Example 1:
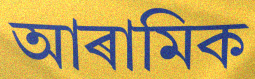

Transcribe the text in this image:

আৰামিক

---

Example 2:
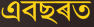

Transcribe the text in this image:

এবছৰত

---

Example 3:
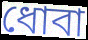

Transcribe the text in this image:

ধোবা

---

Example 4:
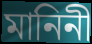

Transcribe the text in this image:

মানিনী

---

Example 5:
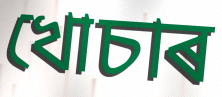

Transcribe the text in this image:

খোচাৰ